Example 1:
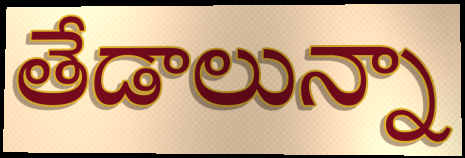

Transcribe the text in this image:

తేడాలున్నా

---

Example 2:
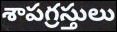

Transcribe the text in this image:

శాపగ్రస్తులు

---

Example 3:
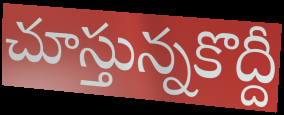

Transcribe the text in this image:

చూస్తున్నకొద్దీ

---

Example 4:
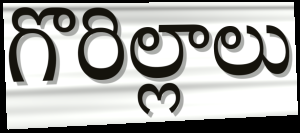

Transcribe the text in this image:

గొరిల్లాలు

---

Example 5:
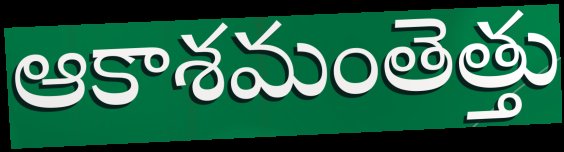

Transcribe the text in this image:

ఆకాశమంతెత్తు